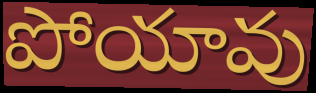
పోయావు